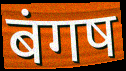
बंगष